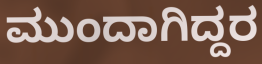
ಮುಂದಾಗಿದ್ದರ